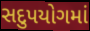
સદુપયોગમાં